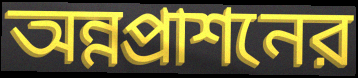
অন্নপ্রাশনের